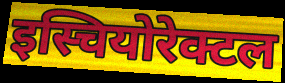
इस्चियोरेक्टल